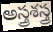
అస్త్రశస్త్ర